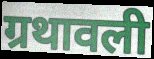
ग्रथावली